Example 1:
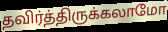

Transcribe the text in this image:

தவிர்த்திருக்கலாமோ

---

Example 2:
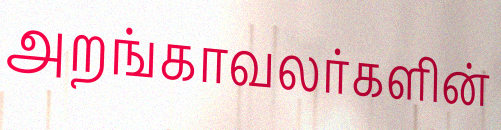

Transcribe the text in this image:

அறங்காவலர்களின்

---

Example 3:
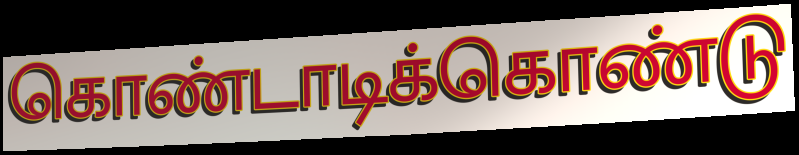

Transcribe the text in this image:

கொண்டாடிக்கொண்டு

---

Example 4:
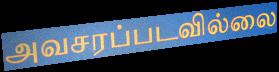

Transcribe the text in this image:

அவசரப்படவில்லை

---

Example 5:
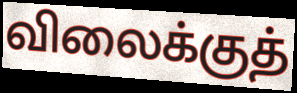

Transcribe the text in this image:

விலைக்குத்